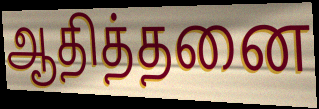
ஆதித்தனை